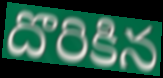
దొరికిన